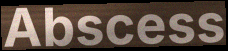
Abscess